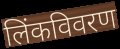
लिंकविवरण